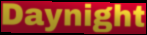
Daynight